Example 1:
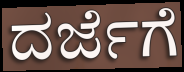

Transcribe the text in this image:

ದರ್ಜೆಗೆ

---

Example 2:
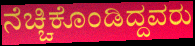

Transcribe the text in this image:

ನೆಚ್ಚಿಕೊಂಡಿದ್ದವರು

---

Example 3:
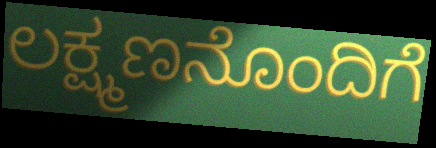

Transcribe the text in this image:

ಲಕ್ಷ್ಮಣನೊಂದಿಗೆ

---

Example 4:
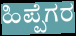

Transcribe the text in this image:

ಹಿಪ್ಪೆಗರ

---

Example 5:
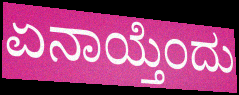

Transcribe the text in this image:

ಏನಾಯ್ತೆಂದು